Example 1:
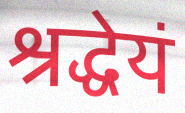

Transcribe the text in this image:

श्रद्धेयं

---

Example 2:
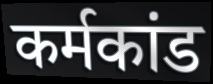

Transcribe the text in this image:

कर्मकांड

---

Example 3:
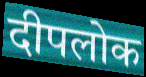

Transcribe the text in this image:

दीपलोक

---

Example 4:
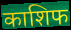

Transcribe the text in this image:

काशिफ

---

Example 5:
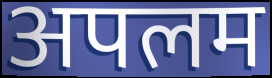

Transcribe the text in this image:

अपलम